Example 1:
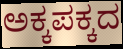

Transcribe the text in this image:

ಅಕ್ಕಪಕ್ಕದ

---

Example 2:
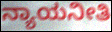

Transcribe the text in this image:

ನ್ಯಾಯನೀತಿ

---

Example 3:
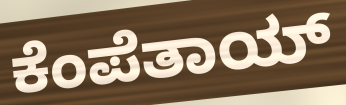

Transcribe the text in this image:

ಕೆಂಪೆತಾಯ್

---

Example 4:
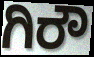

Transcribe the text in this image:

ಗಿರೌ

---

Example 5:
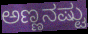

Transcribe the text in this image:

ಅಣ್ಣನಷ್ಟು